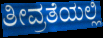
ತೀವ್ರತೆಯಲ್ಲಿ